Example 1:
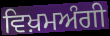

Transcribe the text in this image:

ਵਿਖ਼ਮਅੰਗੀ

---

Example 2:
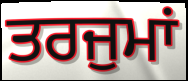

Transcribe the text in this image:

ਤਰਜੁਮਾਂ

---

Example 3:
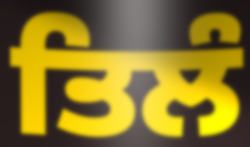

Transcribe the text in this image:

ਤਿਲੰ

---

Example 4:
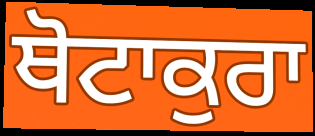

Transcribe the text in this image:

ਥੋਟਾਕੁਰਾ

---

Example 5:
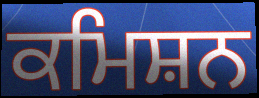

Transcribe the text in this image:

ਕਮਿਸ਼ਨ